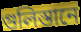
গুলিস্তানে